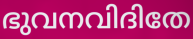
ഭുവനവിദിതേ